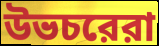
উভচরেরা